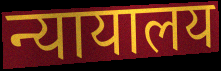
न्यायालय